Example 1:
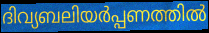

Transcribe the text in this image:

ദിവ്യബലിയർപ്പണത്തിൽ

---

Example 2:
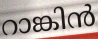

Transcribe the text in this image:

റാങ്കിൻ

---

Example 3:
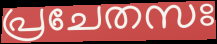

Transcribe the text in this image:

പ്രചേതസഃ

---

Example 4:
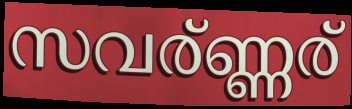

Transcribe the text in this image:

സവര്ണ്ണര്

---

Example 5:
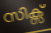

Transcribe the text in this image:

സിക്സ്